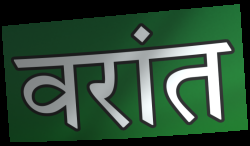
वरांत